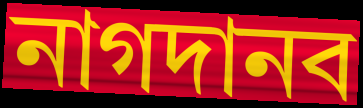
নাগদানব